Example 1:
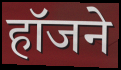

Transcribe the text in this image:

हॉजने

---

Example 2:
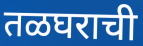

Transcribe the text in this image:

तळघराची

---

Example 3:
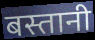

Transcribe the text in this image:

बस्तानी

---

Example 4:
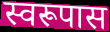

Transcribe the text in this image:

स्वरूपास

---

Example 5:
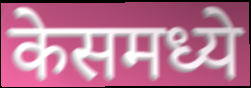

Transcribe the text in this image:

केसमध्ये